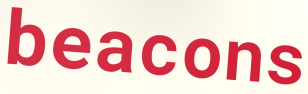
beacons